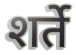
शर्ते